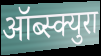
ऑब्स्क्युरा